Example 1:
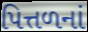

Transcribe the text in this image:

પિત્તળનાં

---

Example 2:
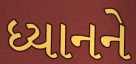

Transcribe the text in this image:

ધ્યાનને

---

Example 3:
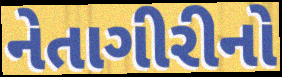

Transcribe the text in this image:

નેતાગીરીનો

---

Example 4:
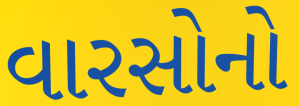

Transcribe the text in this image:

વારસોનો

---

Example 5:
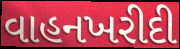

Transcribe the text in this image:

વાહનખરીદી